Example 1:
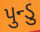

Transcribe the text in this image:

પુન્ડુ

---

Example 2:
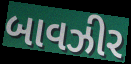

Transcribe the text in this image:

બાવઝીર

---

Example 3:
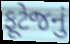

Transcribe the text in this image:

ફૂટેજનું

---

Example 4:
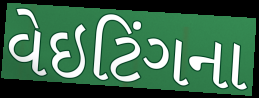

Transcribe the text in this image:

વેઇટિંગના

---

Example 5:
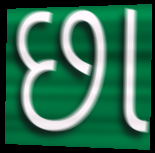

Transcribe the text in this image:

છા